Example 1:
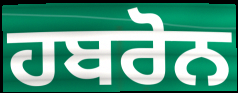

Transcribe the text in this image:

ਹਬਰੋਨ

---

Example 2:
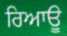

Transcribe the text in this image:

ਰਿਆਊ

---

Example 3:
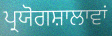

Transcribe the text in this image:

ਪ੍ਰਯੋਗਸ਼ਾਲਾਵਾਂ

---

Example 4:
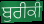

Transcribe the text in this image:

ਬੁਰੀਕੀ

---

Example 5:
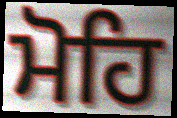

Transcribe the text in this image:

ਮੋਹਿ